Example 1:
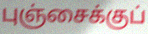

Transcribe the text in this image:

புஞ்சைக்குப்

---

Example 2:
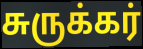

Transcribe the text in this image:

சுருக்கர்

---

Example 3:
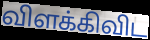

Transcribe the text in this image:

விளக்கிவிட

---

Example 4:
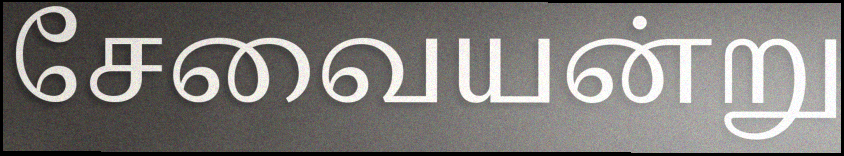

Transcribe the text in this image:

சேவையன்று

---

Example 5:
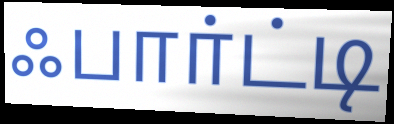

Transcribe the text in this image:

ஃபார்ட்டி